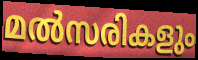
മൽസരികളും